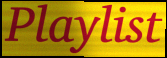
Playlist